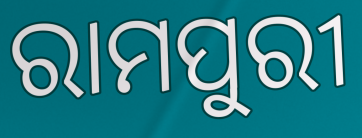
ରାମପୁରୀ